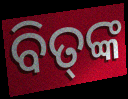
ବିତ୍‌ଙ୍କ